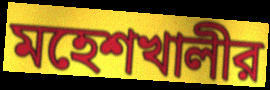
মহেশখালীর